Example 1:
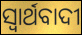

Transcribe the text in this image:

ସ୍ବାର୍ଥବାଦୀ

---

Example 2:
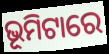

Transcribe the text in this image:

ଭୂମିଟାରେ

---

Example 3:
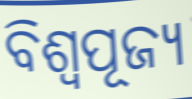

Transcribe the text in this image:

ବିଶ୍ୱପୂଜ୍ୟ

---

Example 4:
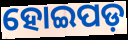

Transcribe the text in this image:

ହୋଇପଡ଼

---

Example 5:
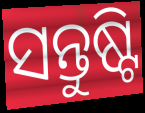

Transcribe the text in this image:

ସନ୍ତୁଷ୍ଟି